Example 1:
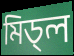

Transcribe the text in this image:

মিড্‌ল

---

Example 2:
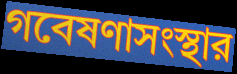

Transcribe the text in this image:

গবেষণাসংস্থার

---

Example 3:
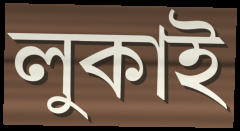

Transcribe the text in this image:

লুকাই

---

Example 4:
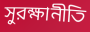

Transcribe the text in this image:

সুরক্ষানীতি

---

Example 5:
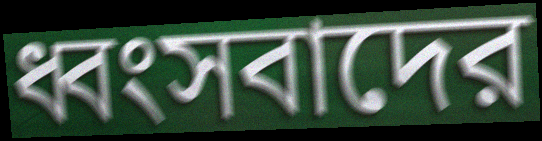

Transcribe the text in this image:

ধ্বংসবাদের